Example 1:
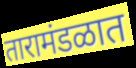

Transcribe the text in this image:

तारामंडळात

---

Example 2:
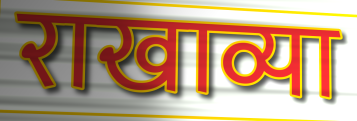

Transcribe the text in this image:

राखाव्या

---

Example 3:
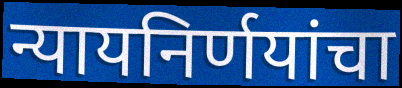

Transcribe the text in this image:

न्यायनिर्णयांचा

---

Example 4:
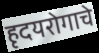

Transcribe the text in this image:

हृदयरोगाचे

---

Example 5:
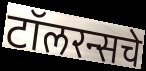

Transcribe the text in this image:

टॉलरन्सचे